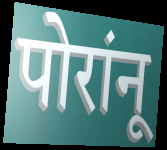
पोरांनू